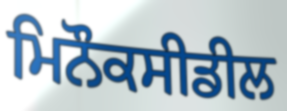
ਮਿਨੌਕਸੀਡੀਲ